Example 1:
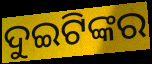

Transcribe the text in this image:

ଦୁଇଟିଙ୍କର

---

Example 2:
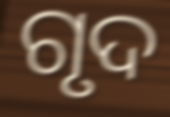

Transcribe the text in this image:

ଗୃଦ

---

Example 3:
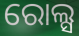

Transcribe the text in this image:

ରୋଲ୍ସ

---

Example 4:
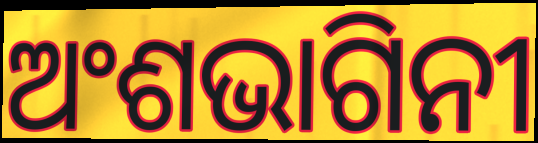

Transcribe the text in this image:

ଅଂଶଭାଗିନୀ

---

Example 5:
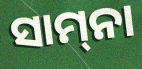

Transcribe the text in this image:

ସାମ୍‌ନା